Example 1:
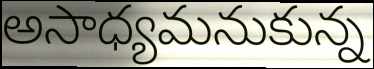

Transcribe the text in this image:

అసాధ్యమనుకున్న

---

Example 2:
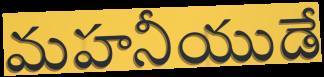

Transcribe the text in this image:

మహనీయుడే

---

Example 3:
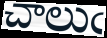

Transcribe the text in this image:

చాలుఁ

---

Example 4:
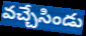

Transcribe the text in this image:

వచ్చేసిండు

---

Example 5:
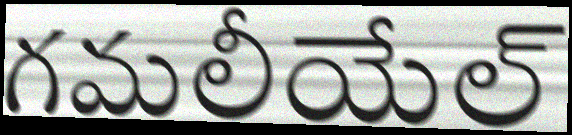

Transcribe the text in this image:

గమలీయేల్